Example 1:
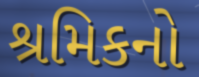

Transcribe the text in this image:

શ્રમિકનો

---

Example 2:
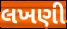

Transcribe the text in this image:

લખણી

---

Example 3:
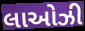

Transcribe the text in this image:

લાઓઝી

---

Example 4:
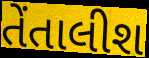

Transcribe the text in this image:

તેંતાલીશ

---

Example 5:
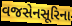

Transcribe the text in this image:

વજસેનસૂરિના